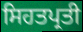
ਸਿਹਤਪ੍ਰਤੀ